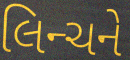
લિન્ચને